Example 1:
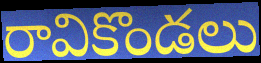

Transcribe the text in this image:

రావికొండలు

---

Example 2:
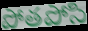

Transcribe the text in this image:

పోతపోసి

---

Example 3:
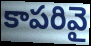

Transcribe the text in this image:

కాపరివై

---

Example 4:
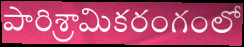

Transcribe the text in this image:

పారిశ్రామికరంగంలో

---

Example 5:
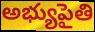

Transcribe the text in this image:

అభ్యుపైతి